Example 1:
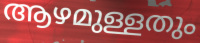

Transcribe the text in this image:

ആഴമുള്ളതും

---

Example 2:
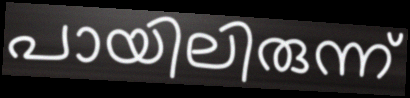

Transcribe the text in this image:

പായിലിരുന്ന്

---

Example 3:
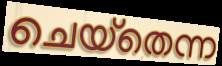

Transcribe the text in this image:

ചെയ്‌തെന്ന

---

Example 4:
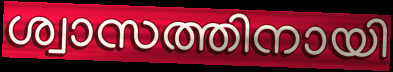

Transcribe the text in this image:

ശ്വാസത്തിനായി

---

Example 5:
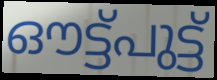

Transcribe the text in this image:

ഔട്ട്പുട്ട്